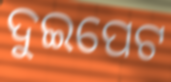
ଦୁଇପେଟ